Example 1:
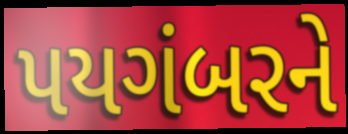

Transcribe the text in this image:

પયગંબરને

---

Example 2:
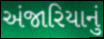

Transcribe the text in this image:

અંજારિયાનું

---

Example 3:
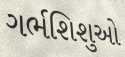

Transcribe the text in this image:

ગર્ભશિશુઓ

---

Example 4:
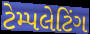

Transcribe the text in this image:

ટેમ્પલેટિંગ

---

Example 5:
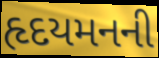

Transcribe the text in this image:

હૃદયમનની